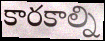
కారకాల్ని